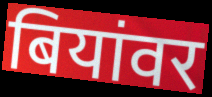
बियांवर